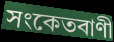
সংকেতবাণী